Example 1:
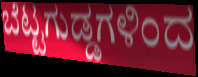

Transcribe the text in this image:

ಬೆಟ್ಟಗುಡ್ಡಗಳಿಂದ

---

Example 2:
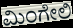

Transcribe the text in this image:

ಮಿಂಗೇಲಿ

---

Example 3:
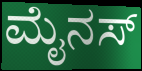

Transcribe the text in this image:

ಮೈನಸ್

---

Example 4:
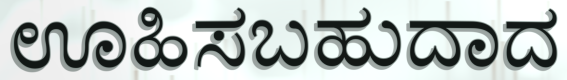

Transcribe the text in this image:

ಊಹಿಸಬಹುದಾದ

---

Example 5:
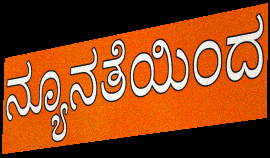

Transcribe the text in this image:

ನ್ಯೂನತೆಯಿಂದ